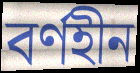
বৰ্ণহীন